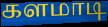
களமாடி